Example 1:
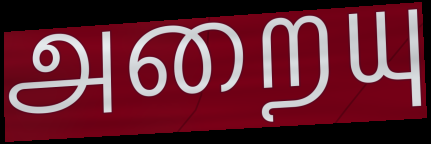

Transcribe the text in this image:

அறையு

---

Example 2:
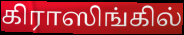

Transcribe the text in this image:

கிராஸிங்கில்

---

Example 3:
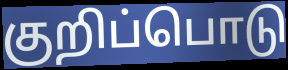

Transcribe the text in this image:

குறிப்பொடு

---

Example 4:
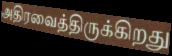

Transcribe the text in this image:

அதிரவைத்திருக்கிறது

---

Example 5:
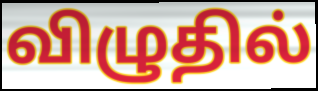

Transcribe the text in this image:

விழுதில்